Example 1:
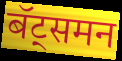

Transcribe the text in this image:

बॅट्समन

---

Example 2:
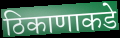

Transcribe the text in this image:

ठिकाणाकडे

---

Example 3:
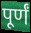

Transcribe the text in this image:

पूर्णं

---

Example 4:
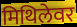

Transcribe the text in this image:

मिथिलेवर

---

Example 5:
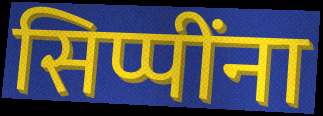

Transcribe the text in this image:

सिप्पींना